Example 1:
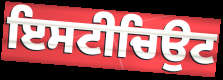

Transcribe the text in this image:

ਇਸਟੀਚਿਉਟ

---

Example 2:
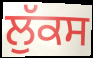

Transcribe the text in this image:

ਲੁੱਕਸ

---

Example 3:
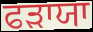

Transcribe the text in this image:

ਫੜਾਯਾ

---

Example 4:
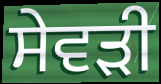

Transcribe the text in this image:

ਸੇਵੜੀ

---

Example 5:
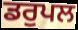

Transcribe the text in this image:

ਡਰੁਪਲ